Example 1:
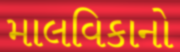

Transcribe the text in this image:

માલવિકાનો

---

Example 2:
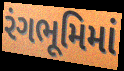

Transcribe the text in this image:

રંગભૂમિમાં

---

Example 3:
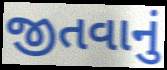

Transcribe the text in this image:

જીતવાનું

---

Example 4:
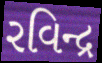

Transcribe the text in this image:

રવિન્દ્ર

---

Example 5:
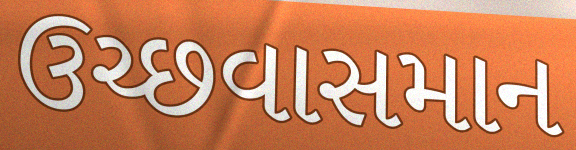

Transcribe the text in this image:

ઉચ્છવાસમાન